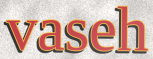
vaseh